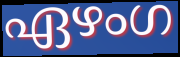
ഏഴംഗ